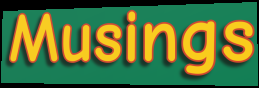
Musings